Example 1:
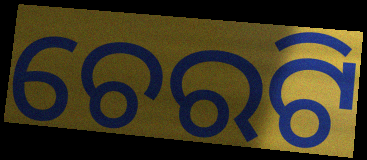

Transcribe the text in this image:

ଚେରଟି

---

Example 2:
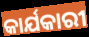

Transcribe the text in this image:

କାର୍ଯକାରୀ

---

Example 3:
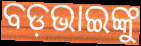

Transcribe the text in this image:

ବଡ଼ଭାଇଙ୍କୁ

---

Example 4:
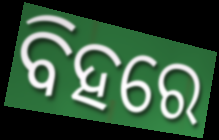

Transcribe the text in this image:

ବିହରେ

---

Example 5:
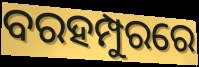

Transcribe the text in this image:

ବରହମ୍ପୁରରେ